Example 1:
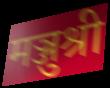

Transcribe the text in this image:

मञ्जुश्री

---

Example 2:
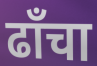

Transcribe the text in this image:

ढाँचा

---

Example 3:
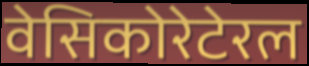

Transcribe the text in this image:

वेसिकोरेटेरल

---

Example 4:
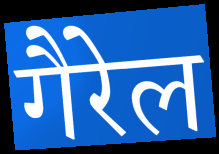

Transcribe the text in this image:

गैरेल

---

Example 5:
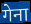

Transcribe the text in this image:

गेना